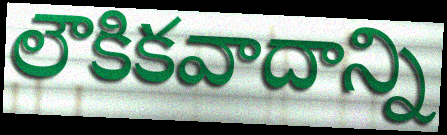
లౌకికవాదాన్ని